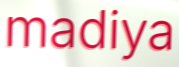
madiya